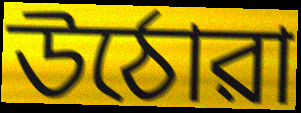
উঠোৱা